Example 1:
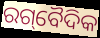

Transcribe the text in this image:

ରଗ୍‌ବୈଦିକ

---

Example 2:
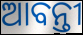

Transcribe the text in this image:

ଆବନ୍ତୀ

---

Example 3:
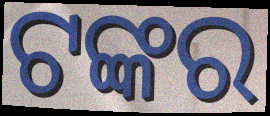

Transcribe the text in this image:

ଟଙ୍କର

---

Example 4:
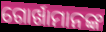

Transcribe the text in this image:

ଗୋର୍ଖାମାନଙ୍କ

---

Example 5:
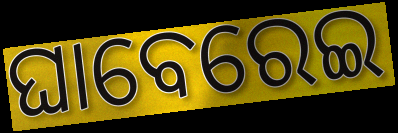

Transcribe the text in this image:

ଘାବେରେଇ